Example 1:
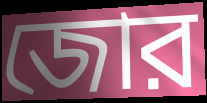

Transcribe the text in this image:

জোর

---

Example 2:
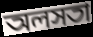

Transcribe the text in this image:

অলসতা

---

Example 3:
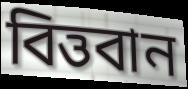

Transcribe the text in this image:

বিত্তবান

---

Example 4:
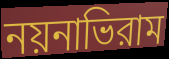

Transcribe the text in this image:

নয়নাভিরাম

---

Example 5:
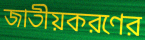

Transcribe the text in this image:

জাতীয়করণের